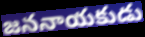
జననాయకుడు